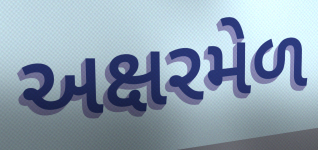
અક્ષરમેળ